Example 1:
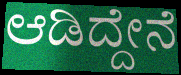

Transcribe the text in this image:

ಆಡಿದ್ದೇನೆ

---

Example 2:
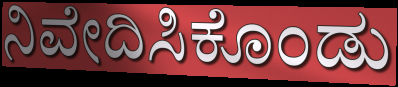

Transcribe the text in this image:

ನಿವೇದಿಸಿಕೊಂಡು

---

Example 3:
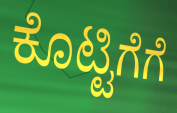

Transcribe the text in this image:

ಕೊಟ್ಟಿಗೆಗೆ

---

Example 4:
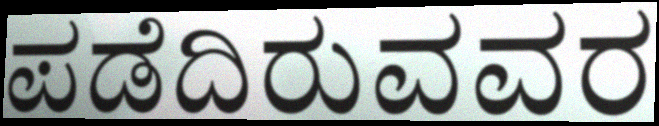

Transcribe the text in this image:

ಪಡೆದಿರುವವರ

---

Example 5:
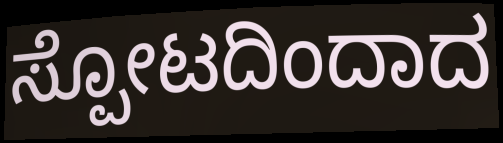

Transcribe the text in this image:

ಸ್ಪೋಟದಿಂದಾದ